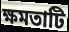
ক্ষমতাটি